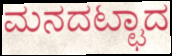
ಮನದಟ್ಟಾದ